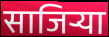
साजिर्‍या